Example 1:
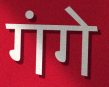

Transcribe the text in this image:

गंगे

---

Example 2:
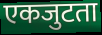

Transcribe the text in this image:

एकजुटता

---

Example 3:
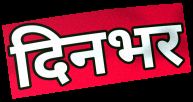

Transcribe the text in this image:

दिनभर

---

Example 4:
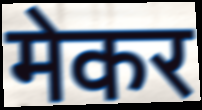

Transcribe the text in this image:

मेकर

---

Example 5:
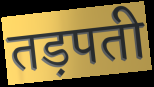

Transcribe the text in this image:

तड़पती